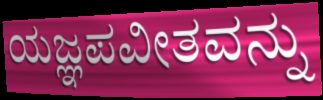
ಯಜ್ಞಪವೀತವನ್ನು